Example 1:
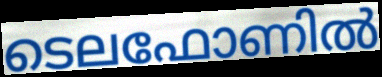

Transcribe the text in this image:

ടെലഫോണിൽ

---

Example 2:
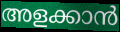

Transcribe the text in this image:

അളക്കാൻ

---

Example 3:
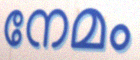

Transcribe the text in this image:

നേമം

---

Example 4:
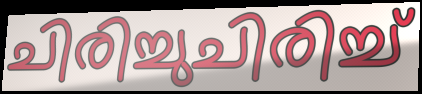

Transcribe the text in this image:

ചിരിച്ചുചിരിച്ച്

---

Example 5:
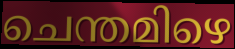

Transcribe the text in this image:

ചെന്തമിഴെ